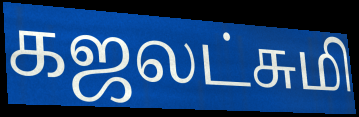
கஜலட்சுமி